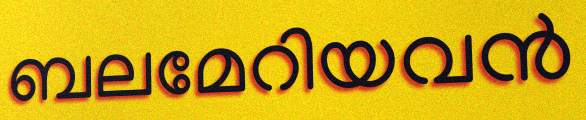
ബലമേറിയവൻ